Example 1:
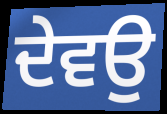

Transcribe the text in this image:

ਦੇਵਉ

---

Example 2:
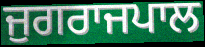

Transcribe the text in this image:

ਜੁਗਰਾਜਪਾਲ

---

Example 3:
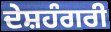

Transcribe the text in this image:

ਦੇਸ਼ਹੰਗਰੀ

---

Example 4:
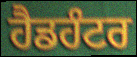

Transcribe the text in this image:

ਹੈਡਹੰਟਰ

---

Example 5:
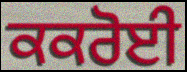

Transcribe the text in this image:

ਕਕਰੋਈ